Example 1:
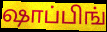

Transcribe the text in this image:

ஷாப்பிங்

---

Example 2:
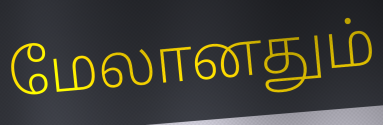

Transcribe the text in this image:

மேலானதும்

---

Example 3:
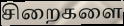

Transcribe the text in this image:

சிறைகளை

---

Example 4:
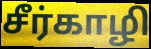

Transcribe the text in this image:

சீர்காழி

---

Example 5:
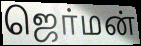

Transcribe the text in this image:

ஜெர்மன்